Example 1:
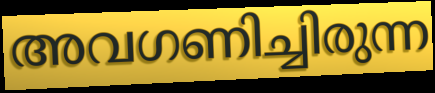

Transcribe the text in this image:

അവഗണിച്ചിരുന്ന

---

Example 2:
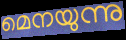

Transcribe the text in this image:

മെനയുന്നു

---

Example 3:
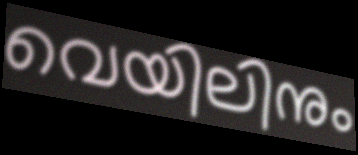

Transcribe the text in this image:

വെയിലിനും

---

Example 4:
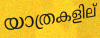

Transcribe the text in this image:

യാത്രകളില്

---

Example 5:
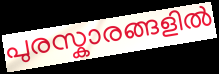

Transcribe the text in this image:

പുരസ്കാരങ്ങളിൽ